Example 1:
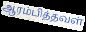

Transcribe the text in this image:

ஆரம்பித்தவள்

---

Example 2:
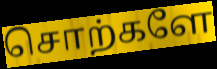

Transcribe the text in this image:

சொற்களே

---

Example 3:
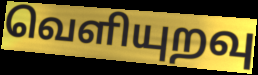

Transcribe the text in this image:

வெளியுறவு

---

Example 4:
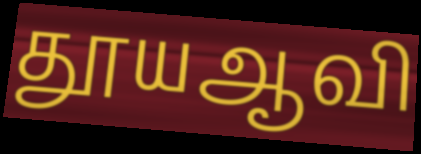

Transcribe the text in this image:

தூயஆவி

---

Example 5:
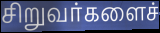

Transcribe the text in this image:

சிறுவர்களைச்